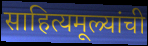
साहित्यमूल्यांची